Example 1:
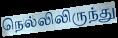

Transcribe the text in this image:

நெல்லிலிருந்து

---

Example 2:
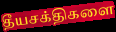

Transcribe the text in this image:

தீயசக்திகளை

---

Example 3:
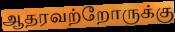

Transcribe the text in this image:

ஆதரவற்றோருக்கு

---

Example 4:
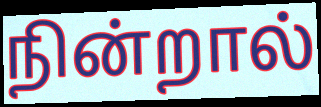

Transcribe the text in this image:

நின்றால்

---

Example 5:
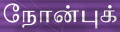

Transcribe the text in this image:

நோன்புக்